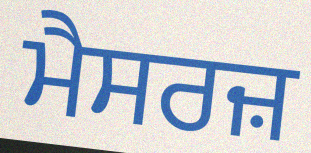
ਮੈਸਰਜ਼